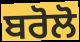
ਬਰੋਲੋ